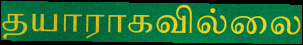
தயாராகவில்லை